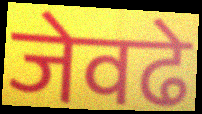
जेवढे